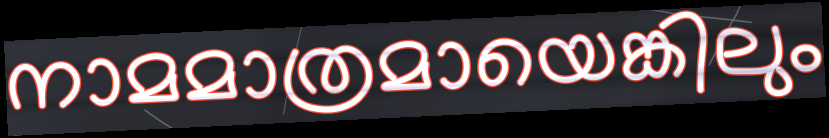
നാമമാത്രമായെങ്കിലും